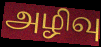
அழிவு